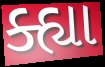
ક્હ્યા